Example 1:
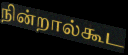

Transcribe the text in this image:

நின்றால்கூட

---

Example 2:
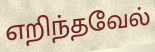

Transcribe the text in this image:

எறிந்தவேல்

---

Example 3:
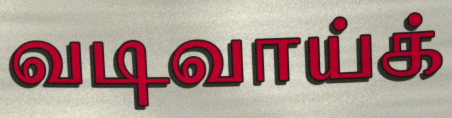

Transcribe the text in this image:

வடிவாய்க்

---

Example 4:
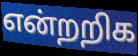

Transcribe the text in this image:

என்றறிக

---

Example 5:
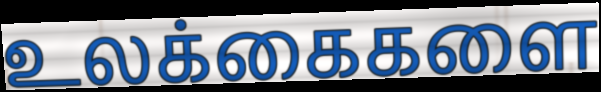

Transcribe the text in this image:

உலக்கைகளை